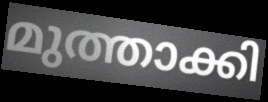
മുത്താക്കി